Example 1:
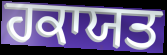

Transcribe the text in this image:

ਹਕਾਯਤ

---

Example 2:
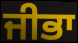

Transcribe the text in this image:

ਜੀਭਾ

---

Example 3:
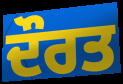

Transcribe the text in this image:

ਦੌਰਤ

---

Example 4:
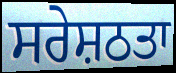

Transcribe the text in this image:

ਸਰੇਸ਼ਠਤਾ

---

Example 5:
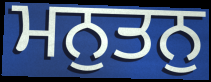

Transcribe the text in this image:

ਮਨੁਤਨੁ